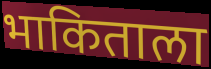
भाकिताला